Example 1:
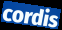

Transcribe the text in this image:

cordis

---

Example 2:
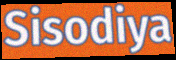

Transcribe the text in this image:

Sisodiya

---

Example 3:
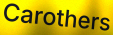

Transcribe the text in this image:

Carothers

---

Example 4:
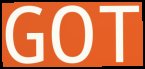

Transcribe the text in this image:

GOT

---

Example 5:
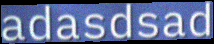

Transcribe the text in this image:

adasdsad